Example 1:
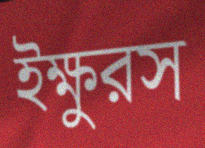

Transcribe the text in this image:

ইক্ষুরস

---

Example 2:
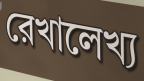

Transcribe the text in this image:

রেখালেখ্য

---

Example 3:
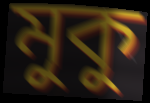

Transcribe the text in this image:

মুকু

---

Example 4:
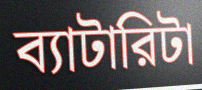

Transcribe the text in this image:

ব্যাটারিটা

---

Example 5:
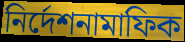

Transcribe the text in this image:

নির্দেশনামাফিক